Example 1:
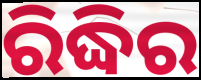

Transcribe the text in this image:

ରିଦ୍ଧିର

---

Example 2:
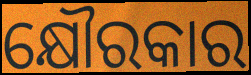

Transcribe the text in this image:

କ୍ଷୌରକାର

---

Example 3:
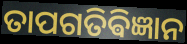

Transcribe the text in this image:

ତାପଗତିଵିଜ୍ଞାନ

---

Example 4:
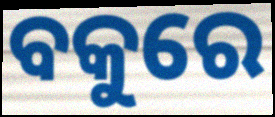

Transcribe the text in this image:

ବକୁରେ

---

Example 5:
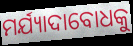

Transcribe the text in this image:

ମର୍ଯ୍ୟାଦାବୋଧକୁ